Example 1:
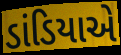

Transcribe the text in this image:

ડાંડિયાએ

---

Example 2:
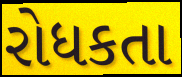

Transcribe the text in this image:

રોધકતા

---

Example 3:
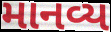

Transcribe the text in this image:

માનવ્ય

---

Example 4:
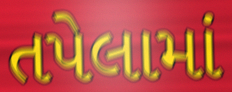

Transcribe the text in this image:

તપેલામાં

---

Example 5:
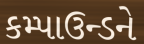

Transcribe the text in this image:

કમ્પાઉન્ડને